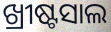
ଖ୍ରୀଷ୍ଟସାଲ